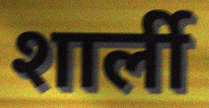
शार्ली